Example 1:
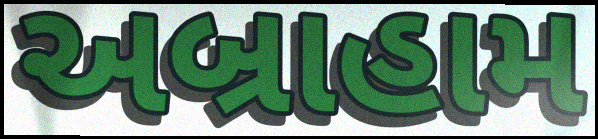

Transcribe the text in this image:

અબ્રાહામ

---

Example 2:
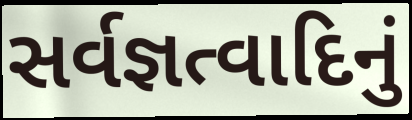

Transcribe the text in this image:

સર્વજ્ઞત્વાદિનું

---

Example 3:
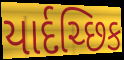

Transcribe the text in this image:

યાર્દચ્છિક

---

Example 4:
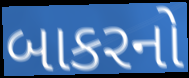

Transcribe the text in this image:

બાકરનો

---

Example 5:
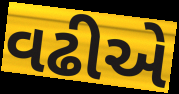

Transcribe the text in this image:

વઢીએ